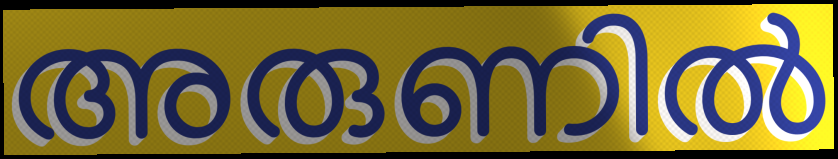
അരുണിൽ